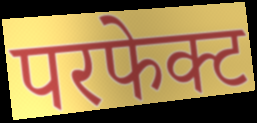
परफेक्ट